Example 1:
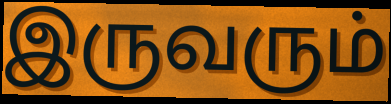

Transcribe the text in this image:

இருவரும்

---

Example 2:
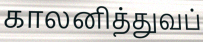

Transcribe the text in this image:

காலனித்துவப்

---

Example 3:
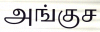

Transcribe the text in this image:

அங்குச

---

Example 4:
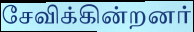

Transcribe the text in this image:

சேவிக்கின்றனர்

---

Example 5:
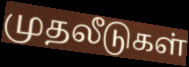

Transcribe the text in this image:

முதலீடுகள்